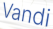
Vandi